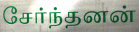
சேர்ந்தனன்